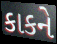
કાકને